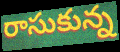
రాసుకున్న